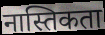
नास्तिकता